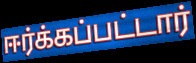
ஈர்க்கப்பட்டார்